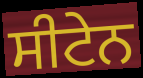
ਸੀਟੇਨ